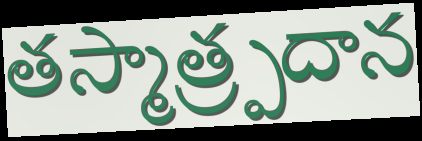
తస్మాత్ర్పదాన